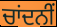
ਚਾਂਦਨੀਂ